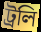
ট্রলি